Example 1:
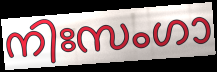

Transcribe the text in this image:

നിഃസംഗാ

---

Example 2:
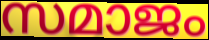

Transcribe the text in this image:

സമാജം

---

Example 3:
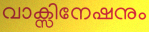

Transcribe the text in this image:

വാക്സിനേഷനും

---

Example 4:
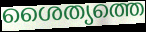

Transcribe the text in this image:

ശൈത്യത്തെ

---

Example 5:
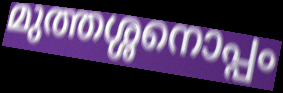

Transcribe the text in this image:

മുത്തശ്ശനൊപ്പം